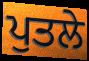
ਪੁਤਲੇ